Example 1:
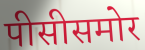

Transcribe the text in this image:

पीसीसमोर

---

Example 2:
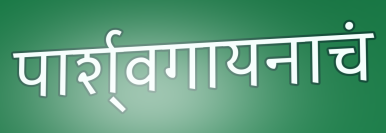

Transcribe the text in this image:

पार्श्वगायनाचं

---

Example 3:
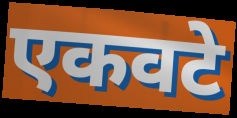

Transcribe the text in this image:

एकवटे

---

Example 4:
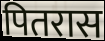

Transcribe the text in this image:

पितरास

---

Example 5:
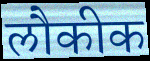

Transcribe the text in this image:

लौकीक